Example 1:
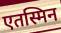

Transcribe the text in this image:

एतस्मिन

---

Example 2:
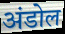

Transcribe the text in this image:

अंडोल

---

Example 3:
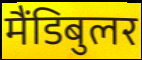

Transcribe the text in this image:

मैंडिबुलर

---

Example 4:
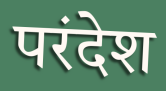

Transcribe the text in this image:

परंदेश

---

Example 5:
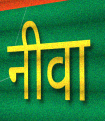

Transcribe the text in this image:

नीवा